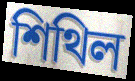
শিথিল